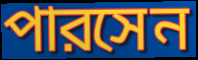
পারসেন